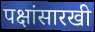
पक्षांसारखी